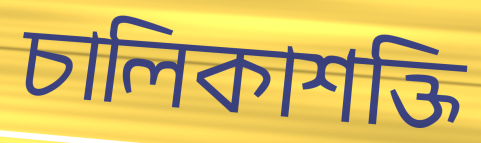
চালিকাশক্তি